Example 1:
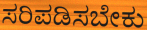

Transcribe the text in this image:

ಸರಿಪಡಿಸಬೇಕು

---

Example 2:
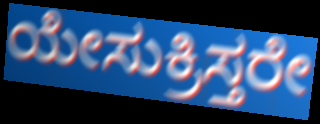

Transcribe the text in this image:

ಯೇಸುಕ್ರಿಸ್ತರೇ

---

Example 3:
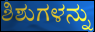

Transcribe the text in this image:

ಶಿಶುಗಳನ್ನು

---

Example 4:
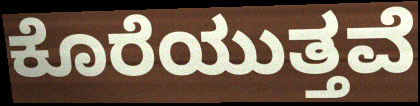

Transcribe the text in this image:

ಕೊರೆಯುತ್ತವೆ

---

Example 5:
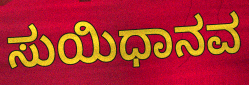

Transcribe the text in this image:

ಸುಯಿಧಾನವ